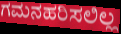
ಗಮನಹರಿಸಲಿಲ್ಲ